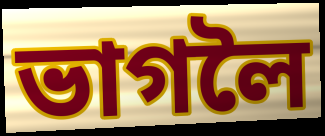
ভাগলৈ